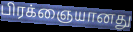
பிரக்ஞையானது